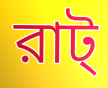
রাট্